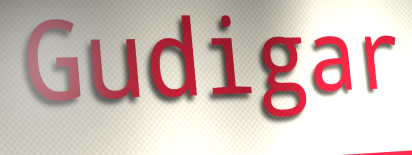
Gudigar